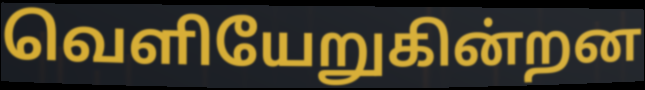
வெளியேறுகின்றன